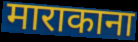
माराकाना